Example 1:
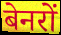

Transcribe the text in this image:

बेनरों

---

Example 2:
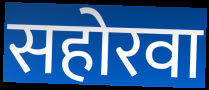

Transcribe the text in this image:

सहोरवा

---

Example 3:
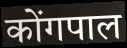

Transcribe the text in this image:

कोंगपाल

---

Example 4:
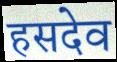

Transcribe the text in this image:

हसदेव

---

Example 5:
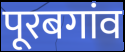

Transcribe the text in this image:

पूरबगांव